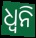
ଧ୍ୱନି